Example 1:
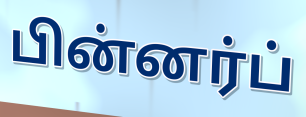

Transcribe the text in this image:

பின்னர்ப்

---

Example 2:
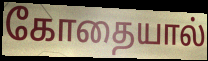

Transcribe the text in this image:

கோதையால்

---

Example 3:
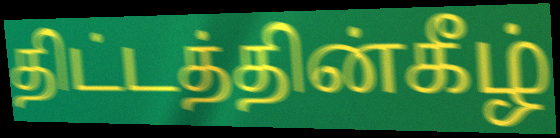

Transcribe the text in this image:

திட்டத்தின்கீழ்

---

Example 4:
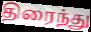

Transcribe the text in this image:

திரைந்து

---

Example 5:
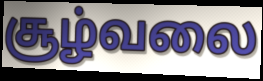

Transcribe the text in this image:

சூழ்வலை